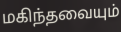
மகிந்தவையும்